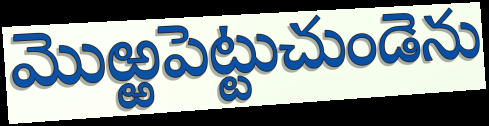
మొఱ్ఱపెట్టుచుండెను